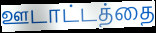
ஊடாட்டத்தை